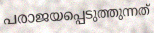
പരാജയപ്പെടുത്തുന്നത്